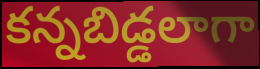
కన్నబిడ్డలాగా